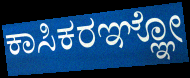
ಕಾಸಿಕರಞ್ಞೋ